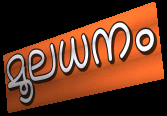
മൂലധനം